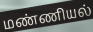
மண்ணியல்